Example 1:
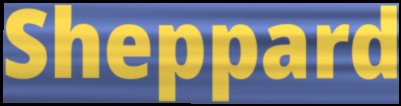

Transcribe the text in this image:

Sheppard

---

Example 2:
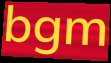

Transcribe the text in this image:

bgm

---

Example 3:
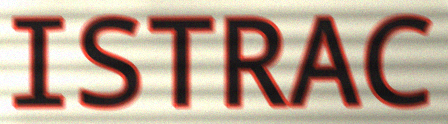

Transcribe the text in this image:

ISTRAC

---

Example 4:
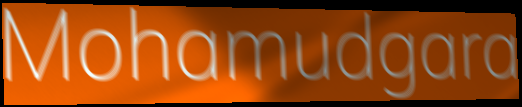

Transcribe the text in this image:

Mohamudgara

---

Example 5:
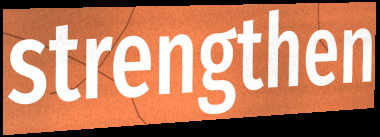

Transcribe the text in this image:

strengthen